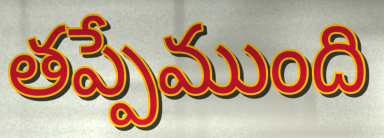
తప్పేముంది